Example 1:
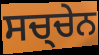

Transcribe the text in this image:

ਸਚ੍ਚੇਨ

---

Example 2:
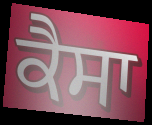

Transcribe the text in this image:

ਕੈਸਾ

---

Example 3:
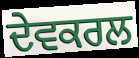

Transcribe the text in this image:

ਦੇਵਕਰਲ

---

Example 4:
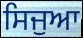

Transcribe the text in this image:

ਸਿਜੁਆ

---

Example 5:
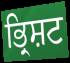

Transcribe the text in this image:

ਭ੍ਰਿਸ਼ਟ